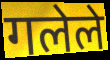
गलेले